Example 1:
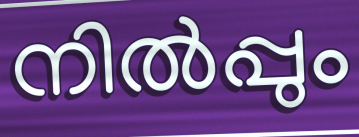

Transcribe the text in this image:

നിൽപ്പും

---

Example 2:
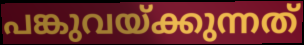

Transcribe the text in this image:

പങ്കുവയ്ക്കുന്നത്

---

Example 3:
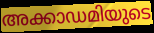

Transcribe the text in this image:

അക്കാഡമിയുടെ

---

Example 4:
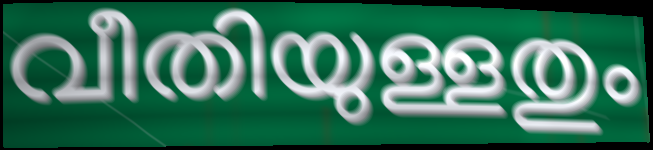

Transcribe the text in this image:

വീതിയുള്ളതും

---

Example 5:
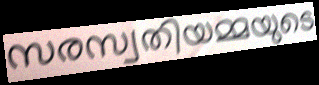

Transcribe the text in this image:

സരസ്വതിയമ്മയുടെ